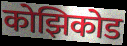
कोझिकोड